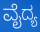
ವೈದ್ಯ